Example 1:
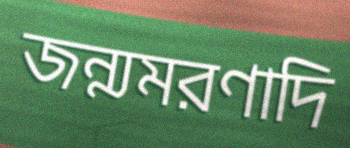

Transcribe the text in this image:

জন্মমরণাদি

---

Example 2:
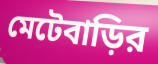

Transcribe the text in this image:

মেটেবাড়ির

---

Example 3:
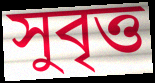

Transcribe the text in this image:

সুবৃত্ত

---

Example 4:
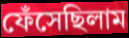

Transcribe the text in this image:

ফেঁসেছিলাম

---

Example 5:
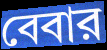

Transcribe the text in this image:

বেবার